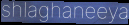
shlaghaneeya